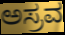
ಅಸ್ರವ